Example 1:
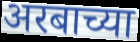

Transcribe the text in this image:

अरबाच्या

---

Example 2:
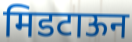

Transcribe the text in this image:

मिडटाऊन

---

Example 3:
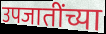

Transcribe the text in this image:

उपजातींच्या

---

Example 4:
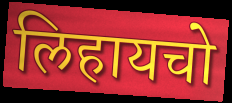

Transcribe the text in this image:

लिहायचो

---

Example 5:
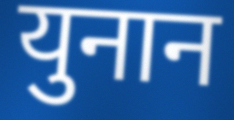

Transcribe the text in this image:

युनान